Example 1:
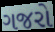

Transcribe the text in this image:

ગજરો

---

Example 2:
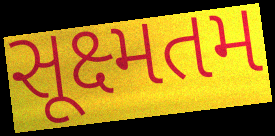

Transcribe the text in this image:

સૂક્ષ્મતમ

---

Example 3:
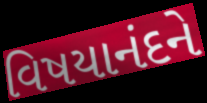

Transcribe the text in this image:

વિષયાનંદને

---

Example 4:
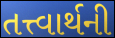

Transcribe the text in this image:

તત્ત્વાર્થની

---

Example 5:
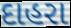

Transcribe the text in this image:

દાહરા